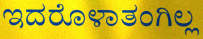
ಇದರೊಳಾತಂಗಿಲ್ಲ